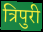
त्रिपुरी